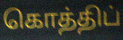
கொத்திப்